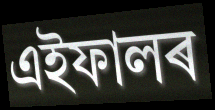
এইফালৰ